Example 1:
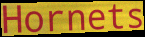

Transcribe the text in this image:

Hornets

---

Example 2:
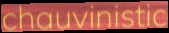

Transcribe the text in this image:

chauvinistic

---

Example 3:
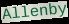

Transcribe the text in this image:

Allenby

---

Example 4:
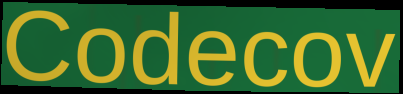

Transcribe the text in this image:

Codecov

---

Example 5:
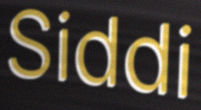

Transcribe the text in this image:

Siddi